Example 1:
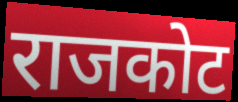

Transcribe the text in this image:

राजकोट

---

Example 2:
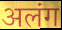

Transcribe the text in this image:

अलंग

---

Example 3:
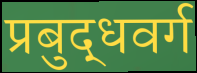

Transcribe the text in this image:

प्रबुद्धवर्ग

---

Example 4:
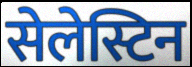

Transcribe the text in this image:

सेलेस्टिन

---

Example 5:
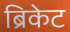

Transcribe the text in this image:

ब्रिकेट